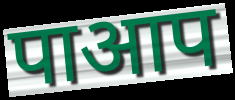
पाआप